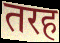
तरह